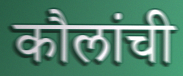
कौलांची